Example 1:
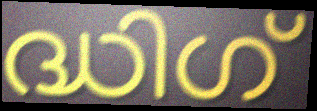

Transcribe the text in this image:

ദ്ധിഗ്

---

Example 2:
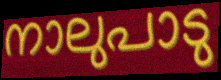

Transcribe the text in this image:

നാലുപാടു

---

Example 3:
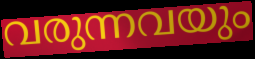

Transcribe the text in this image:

വരുന്നവയും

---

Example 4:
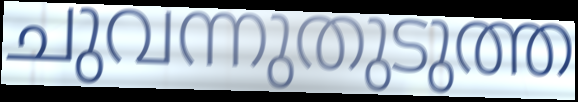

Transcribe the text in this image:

ചുവന്നുതുടുത്ത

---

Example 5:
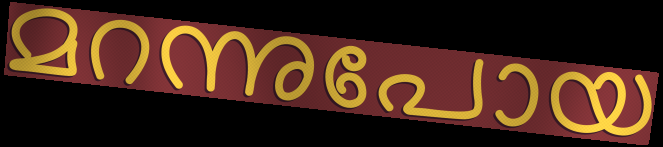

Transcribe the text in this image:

മറന്നുപോയ